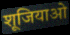
शूजियाओ